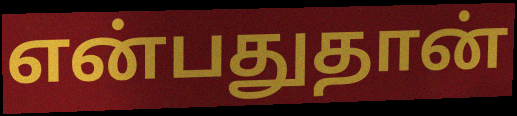
என்பதுதான்